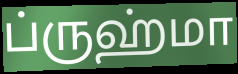
ப்ருஹ்மா